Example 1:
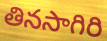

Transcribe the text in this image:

తినసాగిరి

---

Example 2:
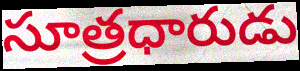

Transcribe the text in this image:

సూత్రధారుడు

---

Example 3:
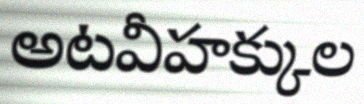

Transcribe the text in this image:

అటవీహక్కుల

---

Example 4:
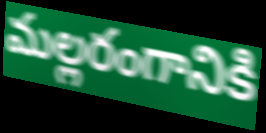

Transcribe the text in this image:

మల్లరంగానికి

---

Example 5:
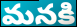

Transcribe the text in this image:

మనకి